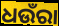
ଧଉଁରା